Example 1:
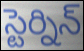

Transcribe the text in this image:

స్టెర్నిన్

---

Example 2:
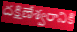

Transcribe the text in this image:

దక్షిణేశ్వరానికి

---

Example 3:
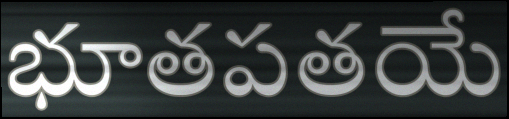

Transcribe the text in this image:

భూతపతయే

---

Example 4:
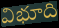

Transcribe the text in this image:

విభూది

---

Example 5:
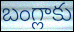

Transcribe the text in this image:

బంగ్లాకు